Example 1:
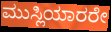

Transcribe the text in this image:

ಮುಸ್ಲಿಯಾರರೇ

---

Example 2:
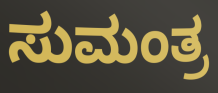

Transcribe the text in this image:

ಸುಮಂತ್ರ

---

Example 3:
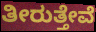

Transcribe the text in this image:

ತೀರುತ್ತೇವೆ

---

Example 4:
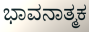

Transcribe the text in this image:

ಭಾವನಾತ್ಮಕ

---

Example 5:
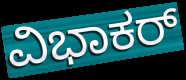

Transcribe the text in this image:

ವಿಭಾಕರ್